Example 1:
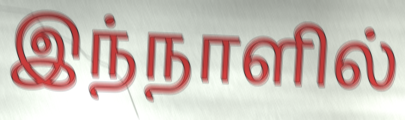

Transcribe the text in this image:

இந்நாளில்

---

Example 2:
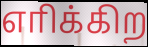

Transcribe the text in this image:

எரிக்கிற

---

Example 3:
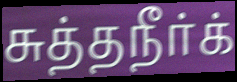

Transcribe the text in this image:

சுத்தநீர்க்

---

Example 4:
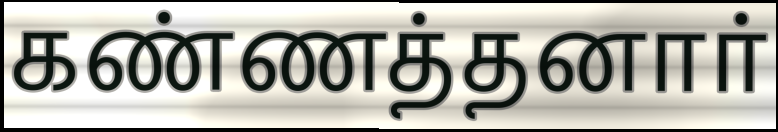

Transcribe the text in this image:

கண்ணத்தனார்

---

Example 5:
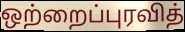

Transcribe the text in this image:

ஒற்றைப்புரவித்